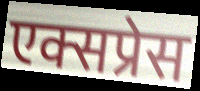
एक्सप्रेस